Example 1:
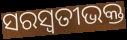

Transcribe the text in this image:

ସରସ୍ୱତୀଭକ୍ତ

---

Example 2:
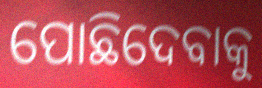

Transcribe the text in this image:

ପୋଛିଦେବାକୁ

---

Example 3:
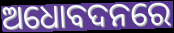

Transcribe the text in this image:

ଅଧୋବଦନରେ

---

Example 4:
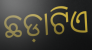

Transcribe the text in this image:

ଛଡ଼ାଟିଏ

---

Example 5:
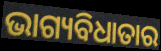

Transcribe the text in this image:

ଭାଗ୍ୟବିଧାତାର